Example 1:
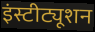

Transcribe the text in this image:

इंस्‍टीट्यूशन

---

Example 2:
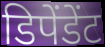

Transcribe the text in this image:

डिपेंडेंट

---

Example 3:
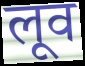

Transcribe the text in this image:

लूव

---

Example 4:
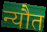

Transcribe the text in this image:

न्यौत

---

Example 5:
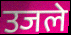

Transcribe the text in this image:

उजले